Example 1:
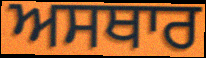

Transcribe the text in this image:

ਅਸਥਾਰ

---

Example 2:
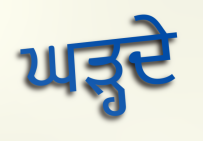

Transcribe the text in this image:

ਘੜ੍ਹਦੇ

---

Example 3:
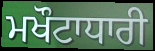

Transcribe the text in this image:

ਮਖੌਟਾਧਾਰੀ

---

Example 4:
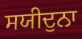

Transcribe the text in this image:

ਸਯੀਦੁਨਾ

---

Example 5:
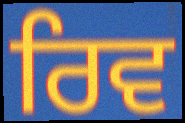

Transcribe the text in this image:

ਰਿਵ